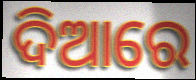
ଦିଆରେ